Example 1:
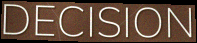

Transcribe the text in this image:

DECISION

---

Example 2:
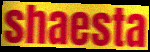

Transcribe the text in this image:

shaesta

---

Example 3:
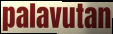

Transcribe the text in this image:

palavutan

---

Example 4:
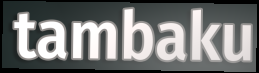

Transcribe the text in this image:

tambaku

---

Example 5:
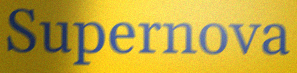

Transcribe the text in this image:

Supernova